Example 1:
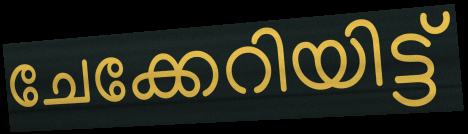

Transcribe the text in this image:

ചേക്കേറിയിട്ട്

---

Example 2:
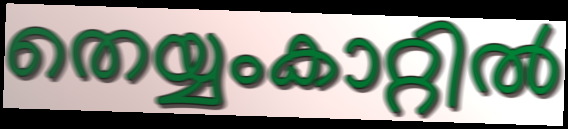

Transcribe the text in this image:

തെയ്യംകാറ്റിൽ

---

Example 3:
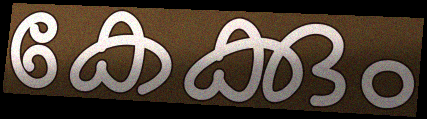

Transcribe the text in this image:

കേക്കും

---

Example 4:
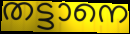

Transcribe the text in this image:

തട്ടാനെ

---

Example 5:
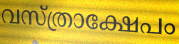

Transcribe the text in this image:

വസ്ത്രാക്ഷേപം